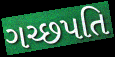
ગચ્છપતિ